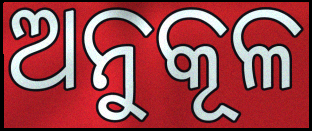
ଅନୁକୂଳ